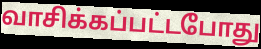
வாசிக்கப்பட்டபோது